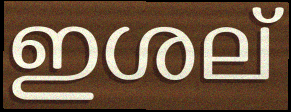
ഇശല്